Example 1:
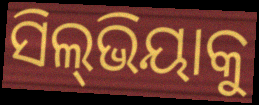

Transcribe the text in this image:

ସିଲ୍‍ଭିୟାକୁ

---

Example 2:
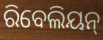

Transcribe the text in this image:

ରିବେଲିୟନ୍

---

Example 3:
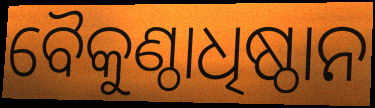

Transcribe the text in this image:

ବୈକୁଣ୍ଠାଧିଷ୍ଠାନ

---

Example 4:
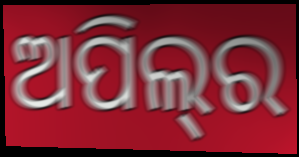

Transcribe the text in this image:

ଅପିଲ୍‌ର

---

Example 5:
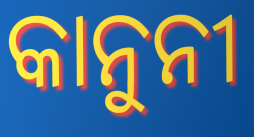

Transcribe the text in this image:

କାନୁନୀ